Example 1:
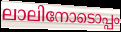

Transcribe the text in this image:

ലാലിനോടൊപ്പം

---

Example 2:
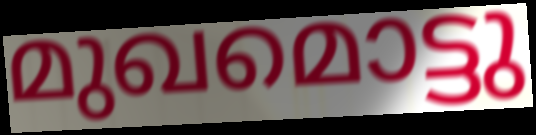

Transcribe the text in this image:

മുഖമൊട്ടു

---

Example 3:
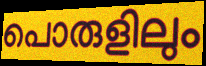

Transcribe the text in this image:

പൊരുളിലും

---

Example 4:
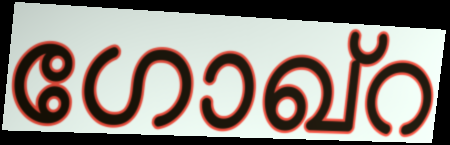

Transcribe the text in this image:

ഗോഖ്റ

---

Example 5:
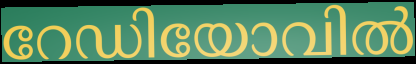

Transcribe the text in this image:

റേഡിയോവിൽ